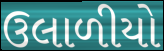
ઉલાળીયો